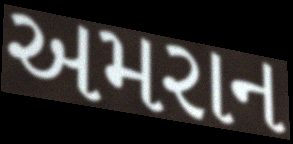
અમરાન